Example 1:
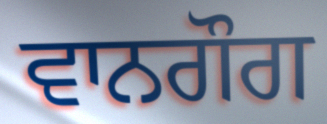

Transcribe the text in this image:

ਵਾਨਗੌਗ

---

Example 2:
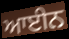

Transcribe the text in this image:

ਆਈਨ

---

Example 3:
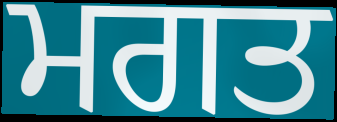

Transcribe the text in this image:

ਮਗਤ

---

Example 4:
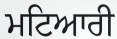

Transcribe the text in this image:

ਮਟਿਆਰੀ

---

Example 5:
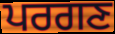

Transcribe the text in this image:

ਪਰਗਣ